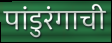
पांडुरंगाची